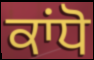
ਕਾਂਧੋ